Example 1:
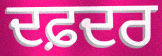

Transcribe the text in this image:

ਦਫ਼ਦਰ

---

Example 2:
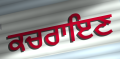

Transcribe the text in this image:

ਕਚਰਾਇਣ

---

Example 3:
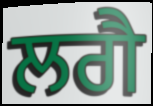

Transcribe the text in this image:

ਲਗੈ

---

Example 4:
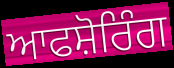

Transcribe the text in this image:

ਆਫਸ਼ੋਰਿੰਗ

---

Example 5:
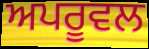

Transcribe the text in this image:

ਅਪਰੂਵਲ